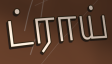
ட்ராய்